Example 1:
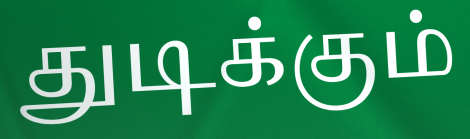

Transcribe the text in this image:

துடிக்கும்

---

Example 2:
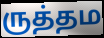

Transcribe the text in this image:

ருத்தம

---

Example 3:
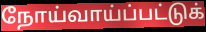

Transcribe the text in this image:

நோய்வாய்ப்பட்டுக்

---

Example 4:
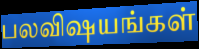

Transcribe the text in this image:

பலவிஷயங்கள்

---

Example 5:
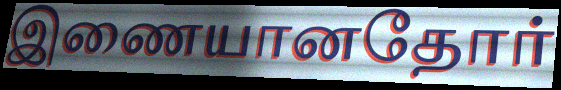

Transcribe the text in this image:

இணையானதோர்